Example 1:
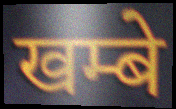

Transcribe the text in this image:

खम्बे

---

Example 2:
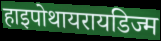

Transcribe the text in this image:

हाइपोथायरायडिज्म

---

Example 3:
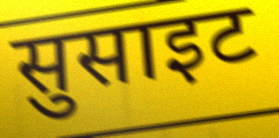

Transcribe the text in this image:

सुसाइट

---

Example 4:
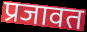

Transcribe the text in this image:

प्रजावत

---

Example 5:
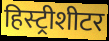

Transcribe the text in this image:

हिस्‍ट्रीशीटर